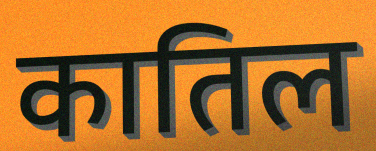
कातिल